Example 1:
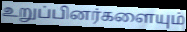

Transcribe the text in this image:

உறுப்பினர்களையும்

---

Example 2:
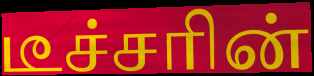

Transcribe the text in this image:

டீச்சரின்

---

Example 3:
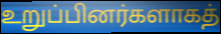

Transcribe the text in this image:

உறுப்பினர்களாகத்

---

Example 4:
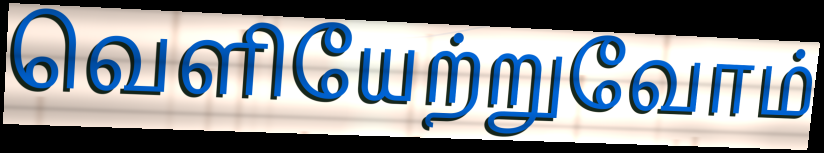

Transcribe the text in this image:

வெளியேற்றுவோம்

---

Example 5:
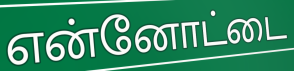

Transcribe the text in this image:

என்னோட்டை